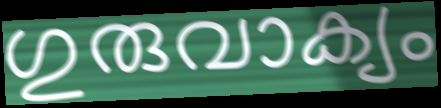
ഗുരുവാക്യം